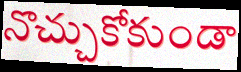
నొచ్చుకోకుండా